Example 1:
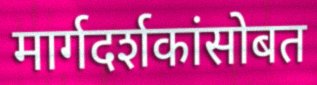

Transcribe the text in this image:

मार्गदर्शकांसोबत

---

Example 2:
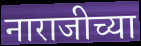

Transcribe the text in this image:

नाराजीच्या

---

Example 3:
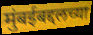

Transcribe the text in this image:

मुंबईबद्दलच्या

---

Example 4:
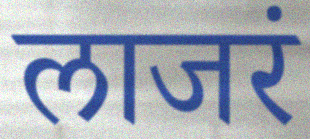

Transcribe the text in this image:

लाजरं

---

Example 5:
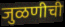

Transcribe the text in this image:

जुळणीची